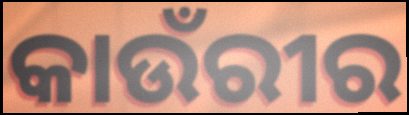
କାଉଁରୀର